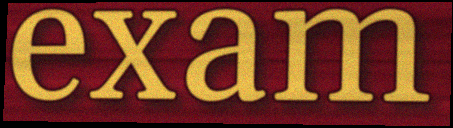
exam